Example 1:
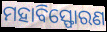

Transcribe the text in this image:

ମହାବିସ୍ଫୋରଣ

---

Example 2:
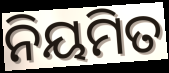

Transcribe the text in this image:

ନିୟମିତ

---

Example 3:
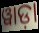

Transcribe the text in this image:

ୱାଡ଼ା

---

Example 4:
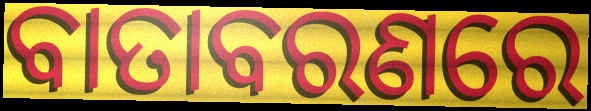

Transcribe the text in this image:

ବାତାବରଣରେ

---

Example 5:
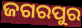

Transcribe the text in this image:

ଜଗରପୁର